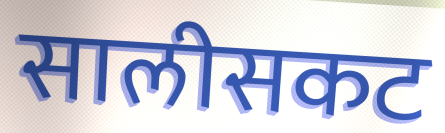
सालीसकट